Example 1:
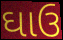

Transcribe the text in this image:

ઘાઉ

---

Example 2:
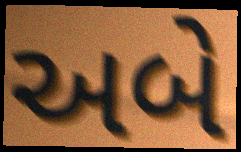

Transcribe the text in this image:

અબે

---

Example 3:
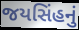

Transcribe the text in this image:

જયસિંહનું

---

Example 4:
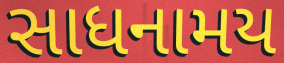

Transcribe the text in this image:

સાધનામય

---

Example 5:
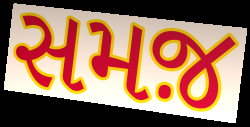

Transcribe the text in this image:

સમજ઼